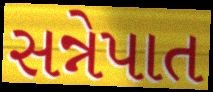
સન્નેપાત